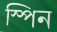
স্পিন